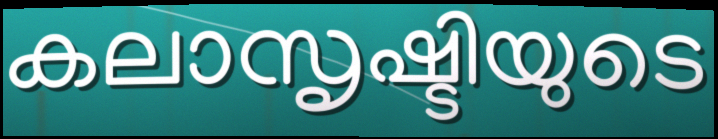
കലാസൃഷ്ടിയുടെ